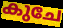
കുചേ